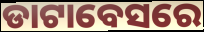
ଡାଟାବେସରେ